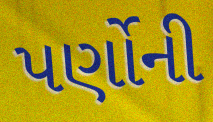
પર્ણોની